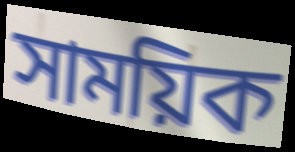
সাময়িক